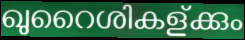
ഖുറൈശികള്ക്കും